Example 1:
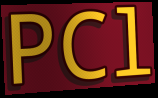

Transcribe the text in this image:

PCl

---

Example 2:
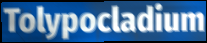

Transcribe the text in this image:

Tolypocladium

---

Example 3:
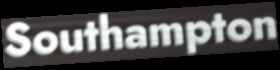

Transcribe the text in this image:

Southampton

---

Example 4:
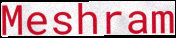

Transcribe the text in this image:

Meshram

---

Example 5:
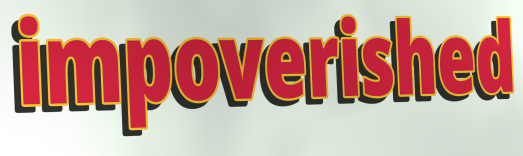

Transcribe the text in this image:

impoverished